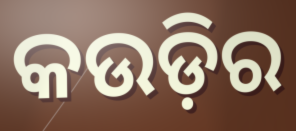
କଉଡ଼ିର